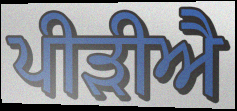
ਪੀੜੀਐ